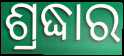
ଶ୍ରଦ୍ଧାର